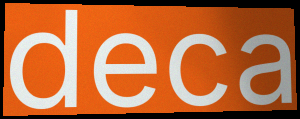
deca